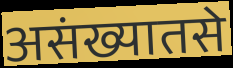
असंख्यातसे